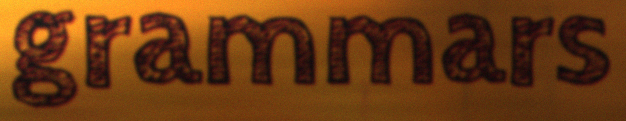
grammars